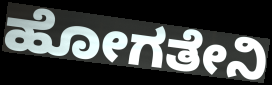
ಹೋಗತೇನಿ